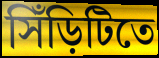
সিঁড়িটিতে